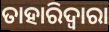
ତାହାରିଦ୍ଵାରା